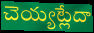
చెయ్యట్లేదా